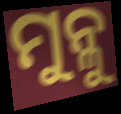
ମୁନ୍ଳୁ